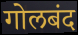
गोलबंद